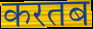
करतब